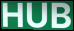
HUB